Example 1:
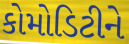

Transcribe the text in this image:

કોમોડિટીને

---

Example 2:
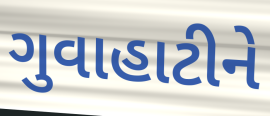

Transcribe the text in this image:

ગુવાહાટીને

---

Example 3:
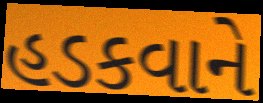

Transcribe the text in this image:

હડકવાને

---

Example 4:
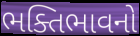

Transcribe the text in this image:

ભક્તિભાવનો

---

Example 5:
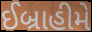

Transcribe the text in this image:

ઈબ્રાહીમે